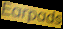
Earpads